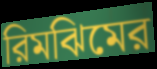
রিমঝিমের